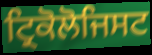
ਟ੍ਰਿਕੋਲੋਜਿਸਟ